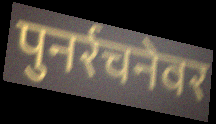
पुनर्रचनेवर